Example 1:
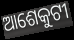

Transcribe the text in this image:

ଆଶେକୁଟୀ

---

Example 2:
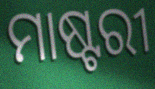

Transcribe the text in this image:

ମାଷ୍ଟରୀ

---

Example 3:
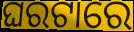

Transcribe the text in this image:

ଘରଟାରେ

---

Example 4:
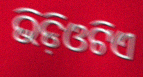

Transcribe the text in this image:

ଭିଡ଼ିଓଟିଏ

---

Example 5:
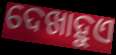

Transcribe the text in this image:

ଦେଖାହୁଏ